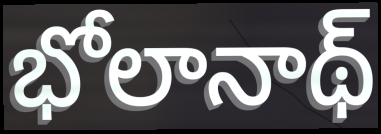
భోలానాథ్